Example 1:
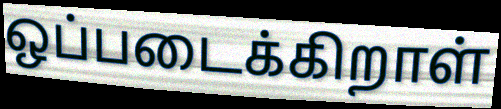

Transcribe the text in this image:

ஒப்படைக்கிறாள்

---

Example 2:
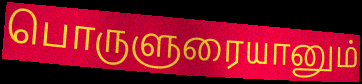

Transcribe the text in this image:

பொருளுரையானும்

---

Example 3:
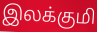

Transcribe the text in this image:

இலக்குமி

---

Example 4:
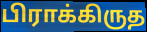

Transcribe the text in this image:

பிராக்கிருத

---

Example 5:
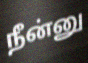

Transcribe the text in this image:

நீன்னு